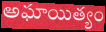
అఘాయిత్యం